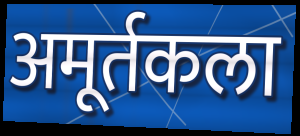
अमूर्तकला